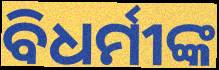
ବିଧର୍ମୀଙ୍କ